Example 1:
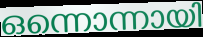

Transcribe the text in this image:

ഒന്നൊന്നായി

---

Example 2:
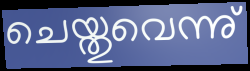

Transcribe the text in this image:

ചെയ്തുവെന്നു്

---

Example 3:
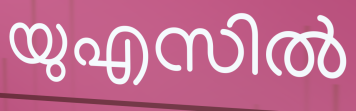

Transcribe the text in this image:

യുഎസിൽ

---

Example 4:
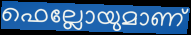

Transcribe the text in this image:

ഫെല്ലോയുമാണ്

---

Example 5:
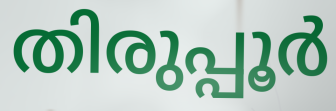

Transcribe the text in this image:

തിരുപ്പൂർ